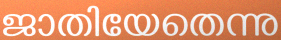
ജാതിയേതെന്നു